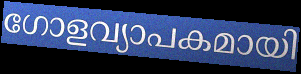
ഗോളവ്യാപകമായി